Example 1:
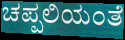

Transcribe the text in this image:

ಚಪ್ಪಲಿಯಂತೆ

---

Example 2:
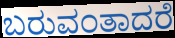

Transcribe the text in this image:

ಬರುವಂತಾದರೆ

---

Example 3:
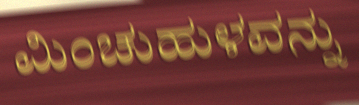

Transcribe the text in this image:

ಮಿಂಚುಹುಳವನ್ನು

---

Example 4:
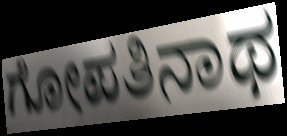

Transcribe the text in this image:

ಗೋಪತಿನಾಥ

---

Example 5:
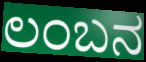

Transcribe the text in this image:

ಲಂಬನ